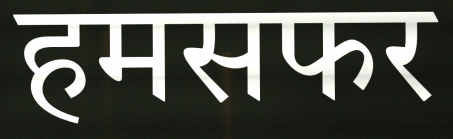
हमसफर